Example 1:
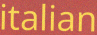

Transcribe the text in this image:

italian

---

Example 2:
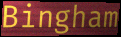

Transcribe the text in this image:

Bingham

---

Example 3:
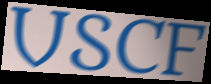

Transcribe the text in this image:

USCF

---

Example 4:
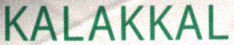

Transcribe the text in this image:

KALAKKAL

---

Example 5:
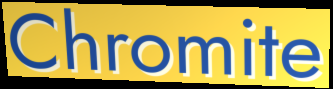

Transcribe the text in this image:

Chromite